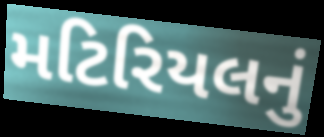
મટિરિયલનું